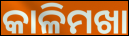
କାଳିମଖା